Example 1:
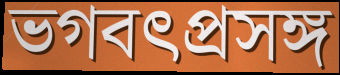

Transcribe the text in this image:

ভগবৎপ্রসঙ্গ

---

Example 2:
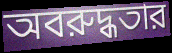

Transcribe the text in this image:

অবরুদ্ধতার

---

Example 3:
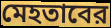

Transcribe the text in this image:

মেহতাবের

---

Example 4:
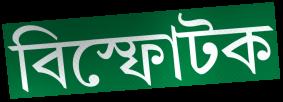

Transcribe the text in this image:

বিস্ফোটক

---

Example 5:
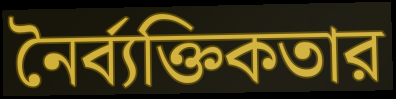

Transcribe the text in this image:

নৈর্ব্যক্তিকতার